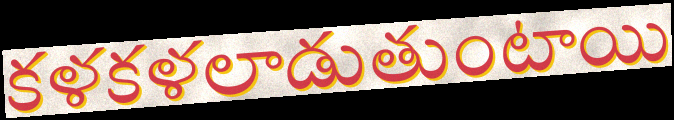
కళకళలాడుతుంటాయి